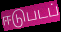
ஈடுபடப்